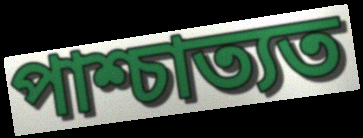
পাশ্চাত্যত